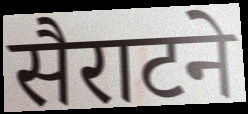
सैराटने